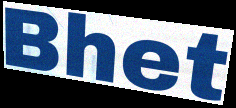
Bhet